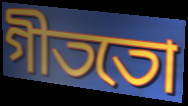
গীততো